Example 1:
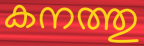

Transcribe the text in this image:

കനത്തു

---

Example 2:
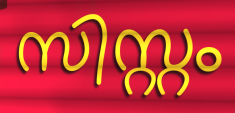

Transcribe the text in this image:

സിസ്റ്റം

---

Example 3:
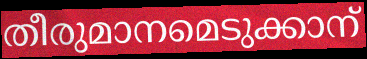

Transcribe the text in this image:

തീരുമാനമെടുക്കാന്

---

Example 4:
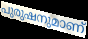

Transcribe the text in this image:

പുരുഷനുമാണ്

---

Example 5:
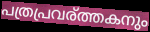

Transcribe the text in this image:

പത്രപ്രവര്ത്തകനും